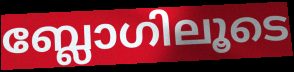
ബ്ലോഗിലൂടെ